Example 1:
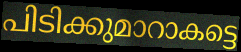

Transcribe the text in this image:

പിടിക്കുമാറാകട്ടെ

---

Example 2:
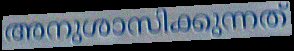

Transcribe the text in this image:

അനുശാസിക്കുന്നത്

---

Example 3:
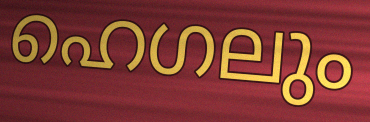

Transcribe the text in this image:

ഹെഗലും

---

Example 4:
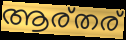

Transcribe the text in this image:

ആര്തര്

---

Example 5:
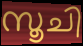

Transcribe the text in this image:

സൂചി